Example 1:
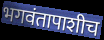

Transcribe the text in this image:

भगवंतापाशीच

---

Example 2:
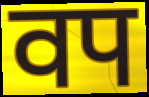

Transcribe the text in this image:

वप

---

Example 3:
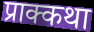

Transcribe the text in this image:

प्राक्कथा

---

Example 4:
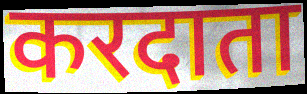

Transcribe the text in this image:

करदाता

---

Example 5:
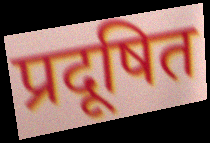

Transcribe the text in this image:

प्रदूषित